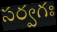
సర్వగః